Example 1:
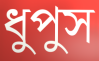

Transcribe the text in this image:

ধুপুস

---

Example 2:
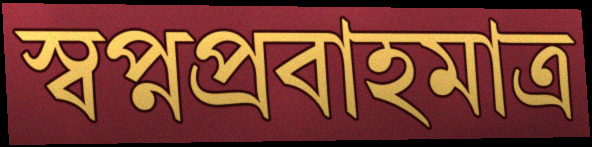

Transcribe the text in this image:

স্বপ্নপ্রবাহমাত্র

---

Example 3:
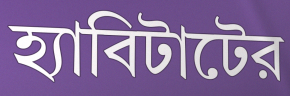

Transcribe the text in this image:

হ্যাবিটাটের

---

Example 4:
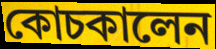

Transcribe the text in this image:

কোচকালেন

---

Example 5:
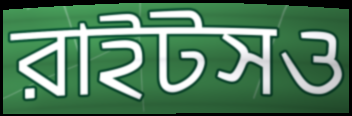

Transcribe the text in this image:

রাইটসও